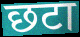
छटा